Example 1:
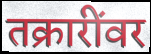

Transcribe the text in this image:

तक्रारींवर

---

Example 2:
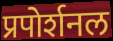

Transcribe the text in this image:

प्रपोर्शनल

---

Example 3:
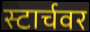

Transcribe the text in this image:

स्टार्चवर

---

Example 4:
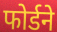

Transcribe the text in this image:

फोर्डने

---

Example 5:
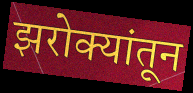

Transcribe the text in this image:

झरोक्यांतून